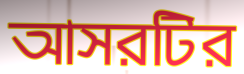
আসরটির